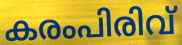
കരംപിരിവ്